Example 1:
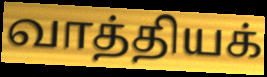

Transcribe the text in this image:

வாத்தியக்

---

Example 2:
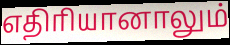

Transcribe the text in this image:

எதிரியானாலும்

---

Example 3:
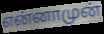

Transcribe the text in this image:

என்னாமுன்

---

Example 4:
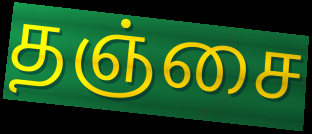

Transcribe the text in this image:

தஞ்சை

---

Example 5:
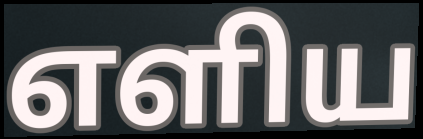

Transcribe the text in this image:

எளிய